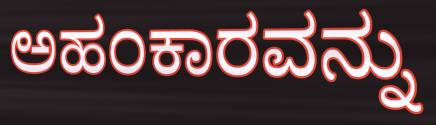
ಅಹಂಕಾರವನ್ನು